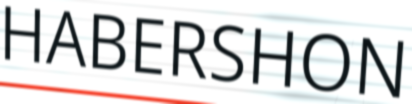
HABERSHON